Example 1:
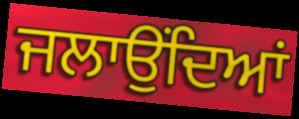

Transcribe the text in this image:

ਜਲਾਉਂਦਿਆਂ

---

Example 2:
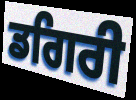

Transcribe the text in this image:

ਡਗਿਰੀ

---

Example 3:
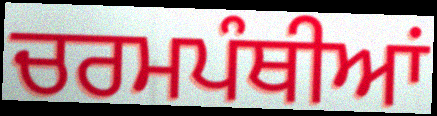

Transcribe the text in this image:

ਚਰਮਪੰਥੀਆਂ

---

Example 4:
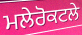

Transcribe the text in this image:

ਮਲੇਰੋਕਟਲੇ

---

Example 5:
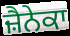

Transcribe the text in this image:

ਜ਼ੈਨੇਕਾ